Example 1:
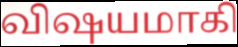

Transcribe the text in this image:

விஷயமாகி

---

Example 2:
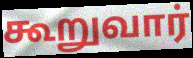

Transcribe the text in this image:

கூறுவார்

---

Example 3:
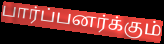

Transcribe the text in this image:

பார்ப்பனர்க்கும்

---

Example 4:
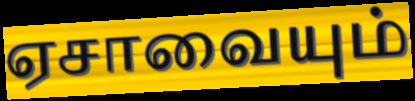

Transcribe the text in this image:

ஏசாவையும்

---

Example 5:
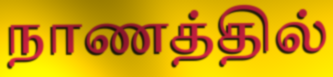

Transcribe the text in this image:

நாணத்தில்